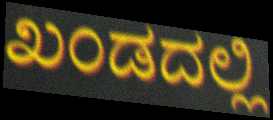
ಖಂಡದಲ್ಲಿ